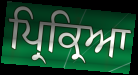
ਪ੍ਰਿਕ੍ਰਿਆ